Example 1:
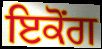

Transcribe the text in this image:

ਇਕੋਂਗ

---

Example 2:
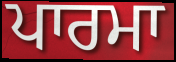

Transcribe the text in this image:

ਪਾਰਮਾ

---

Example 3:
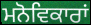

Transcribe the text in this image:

ਮਨੋਵਿਕਾਰਾਂ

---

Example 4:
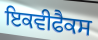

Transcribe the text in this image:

ਇਕਵੀਫੈਕਸ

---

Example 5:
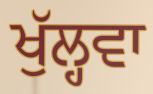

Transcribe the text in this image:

ਖੁੱਲ੍ਹਵਾ